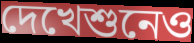
দেখেশুনেও